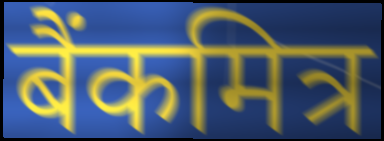
बैंकमित्र